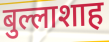
बुल्लाशाह